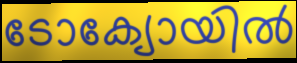
ടോക്യോയിൽ